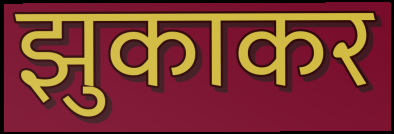
झुकाकर